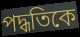
পদ্ধতিকে